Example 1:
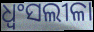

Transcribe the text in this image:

ଧ୍ବଂସଲୀଳା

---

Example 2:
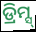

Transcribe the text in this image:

ଡ୍ରିମ୍ସ୍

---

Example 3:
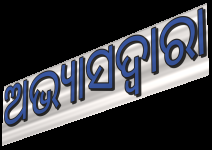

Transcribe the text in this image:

ଅଭ୍ୟାସଦ୍ୱାରା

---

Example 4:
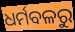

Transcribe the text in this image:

ଧର୍ମବଳରୁ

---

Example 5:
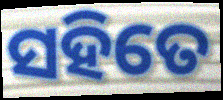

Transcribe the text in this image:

ସହିତେ